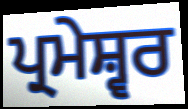
ਪ੍ਰਮੇਸ਼੍ਵਰ